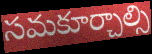
సమకూర్చాల్సి